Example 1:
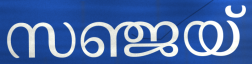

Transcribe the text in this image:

സഞ്ജയ്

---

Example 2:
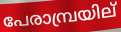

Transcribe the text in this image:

പേരാമ്പ്രയില്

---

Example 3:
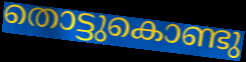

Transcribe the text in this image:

തൊട്ടുകൊണ്ടു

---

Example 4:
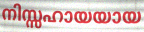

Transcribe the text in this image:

നിസ്സഹായയായ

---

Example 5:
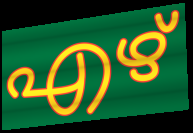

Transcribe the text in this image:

എഴ്